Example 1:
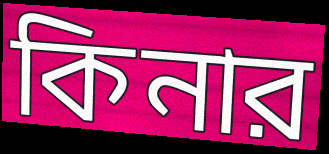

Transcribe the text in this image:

কিনার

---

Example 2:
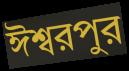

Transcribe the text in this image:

ঈশ্বরপুর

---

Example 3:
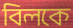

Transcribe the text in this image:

বিলকে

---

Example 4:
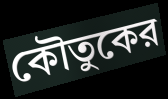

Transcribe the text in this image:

কৌতুকের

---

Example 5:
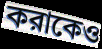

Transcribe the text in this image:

করাকেও